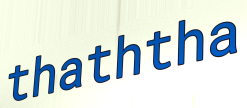
thaththa